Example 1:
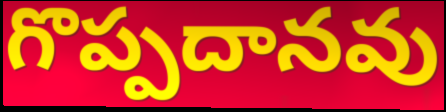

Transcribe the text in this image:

గొప్పదానవు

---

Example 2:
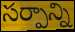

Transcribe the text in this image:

సర్పాన్ని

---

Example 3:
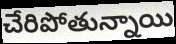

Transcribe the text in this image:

చేరిపోతున్నాయి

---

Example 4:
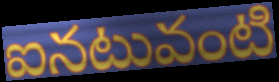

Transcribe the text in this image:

ఐనటువంటి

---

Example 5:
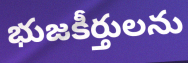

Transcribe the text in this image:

భుజకీర్తులను